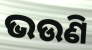
ଭଉଣି